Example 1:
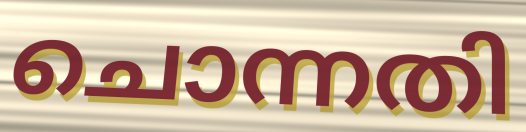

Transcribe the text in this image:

ചൊന്നതി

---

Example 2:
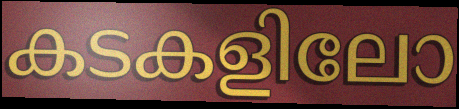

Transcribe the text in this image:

കടകളിലോ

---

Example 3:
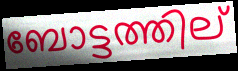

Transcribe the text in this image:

ബോട്ടത്തില്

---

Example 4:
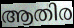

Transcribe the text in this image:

ആതിര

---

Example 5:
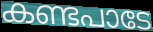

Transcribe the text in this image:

കണ്ടപാടേ